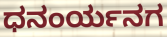
ಧನಂರ್ಯನಗ